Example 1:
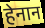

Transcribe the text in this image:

हेनान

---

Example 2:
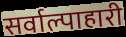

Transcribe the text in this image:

सर्वाल्पाहारी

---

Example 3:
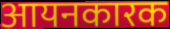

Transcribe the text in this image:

आयनकारक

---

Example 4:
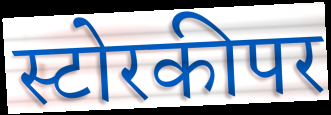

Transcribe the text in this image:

स्टोरकीपर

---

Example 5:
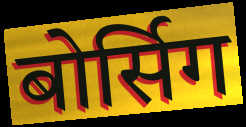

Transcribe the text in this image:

बोर्सिग